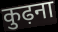
कुढ़ना